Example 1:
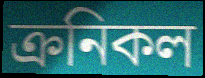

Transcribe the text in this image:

ক্রনিকল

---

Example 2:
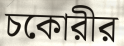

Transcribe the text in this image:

চকোরীর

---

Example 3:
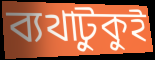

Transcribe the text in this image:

ব্যথাটুকুই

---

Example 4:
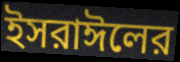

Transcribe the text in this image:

ইসরাঈলের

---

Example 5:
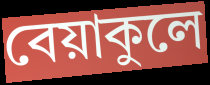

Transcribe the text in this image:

বেয়াকুলে